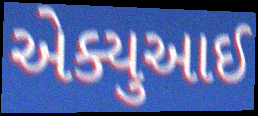
એક્યુઆઈ